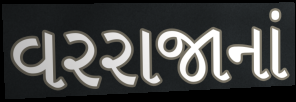
વરરાજાનાં